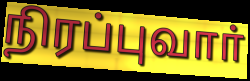
நிரப்புவார்